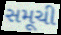
સમૂચી